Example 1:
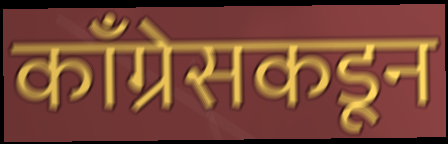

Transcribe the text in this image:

काँग्रेसकडून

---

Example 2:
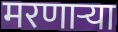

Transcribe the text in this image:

मरणार्‍या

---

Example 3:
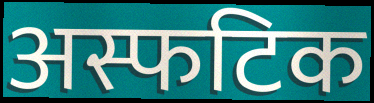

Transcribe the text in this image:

अस्फटिक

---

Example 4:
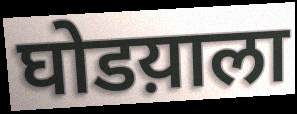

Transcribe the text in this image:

घोडय़ाला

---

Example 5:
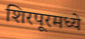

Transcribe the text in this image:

शिरपूरमध्ये